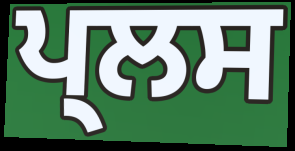
ਪ੍ਲਸ